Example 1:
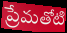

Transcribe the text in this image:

ప్రేమతోటి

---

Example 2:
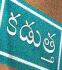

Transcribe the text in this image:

కడుత్త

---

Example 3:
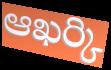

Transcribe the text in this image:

ఆఖర్కి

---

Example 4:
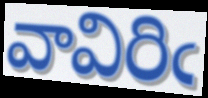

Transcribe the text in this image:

వావిరిఁ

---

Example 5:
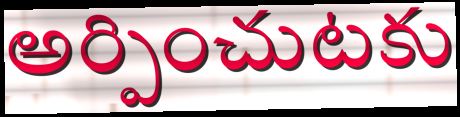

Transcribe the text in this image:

అర్పించుటకు